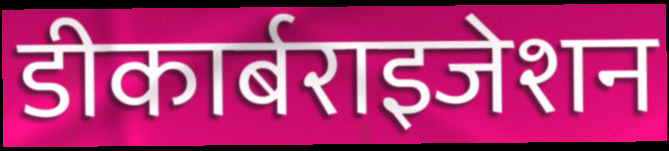
डीकार्बराइजेशन